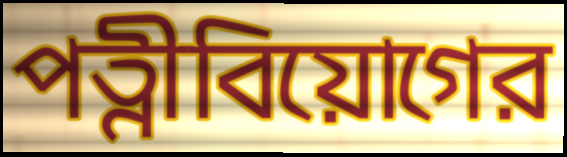
পত্নীবিয়োগের